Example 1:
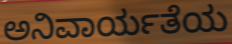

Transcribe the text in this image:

ಅನಿವಾರ್ಯತೆಯ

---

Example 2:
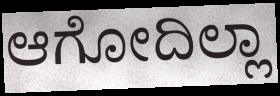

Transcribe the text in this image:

ಆಗೋದಿಲ್ಲಾ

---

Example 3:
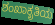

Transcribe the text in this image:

ಶಂಖಾಕೃತಿಯ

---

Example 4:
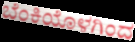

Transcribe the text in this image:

ಬೆಂಕಿಯೊಳಗಿಂದ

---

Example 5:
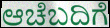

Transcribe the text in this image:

ಆಚೆಬದಿಗೆ